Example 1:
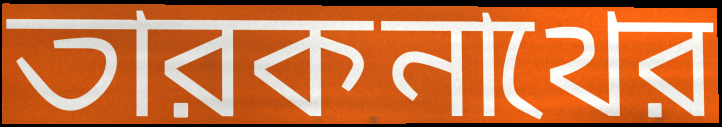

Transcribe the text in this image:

তারকনাথের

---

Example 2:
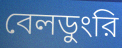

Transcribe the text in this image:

বেলডুংরি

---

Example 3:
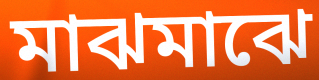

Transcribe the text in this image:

মাঝমাঝে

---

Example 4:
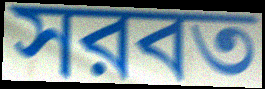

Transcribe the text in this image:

সরবত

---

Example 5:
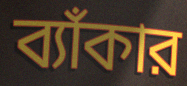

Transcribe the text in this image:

ব্যাঁকার